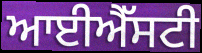
ਆਈਐੱਸਟੀ